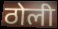
ठोली